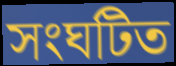
সংঘটিত